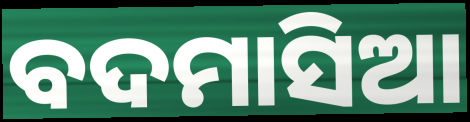
ବଦମାସିଆ